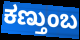
ಕಣ್ತುಂಬ